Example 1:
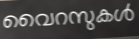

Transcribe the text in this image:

വൈറസുകൾ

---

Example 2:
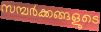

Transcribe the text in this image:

സമ്പർക്കങ്ങളുടെ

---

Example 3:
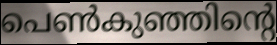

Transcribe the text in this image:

പെൺകുഞ്ഞിന്റെ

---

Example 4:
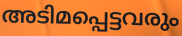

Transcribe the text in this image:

അടിമപ്പെട്ടവരും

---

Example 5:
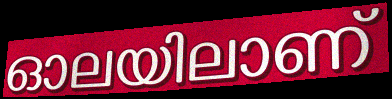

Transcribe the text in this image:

ഓലയിലാണ്